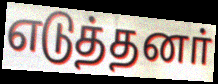
எடுத்தனர்